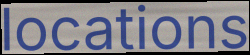
locations